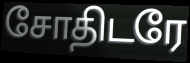
சோதிடரே